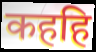
कहहि